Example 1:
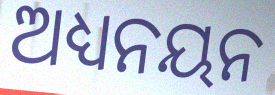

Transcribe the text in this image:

ଅଧ୍ୟନୟନ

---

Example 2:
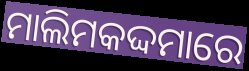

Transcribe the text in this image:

ମାଲିମକଦ୍ଦମାରେ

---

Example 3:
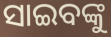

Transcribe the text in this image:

ସାଇବଙ୍କୁ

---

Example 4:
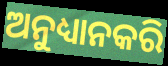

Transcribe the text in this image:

ଅନୁଧ୍ୟାନକରି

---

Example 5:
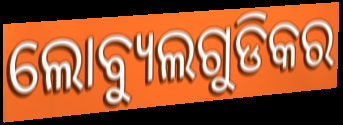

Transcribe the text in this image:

ଲୋବ୍ୟୁଲଗୁଡିକର